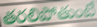
తరలిపోతుంటే